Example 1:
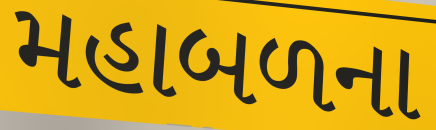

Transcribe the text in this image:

મહાબળના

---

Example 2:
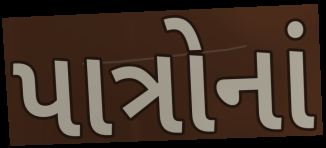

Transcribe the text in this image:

પાત્રોનાં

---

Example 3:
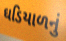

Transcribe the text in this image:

ઘડિયાળનું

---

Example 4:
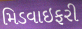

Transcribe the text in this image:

મિડવાઇફરી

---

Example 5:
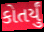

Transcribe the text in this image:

કોતર્યું